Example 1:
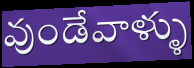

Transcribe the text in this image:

వుండేవాళ్ళు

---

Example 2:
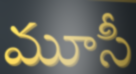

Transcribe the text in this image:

మూసీ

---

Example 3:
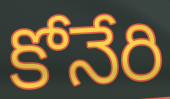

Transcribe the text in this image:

కోనేరి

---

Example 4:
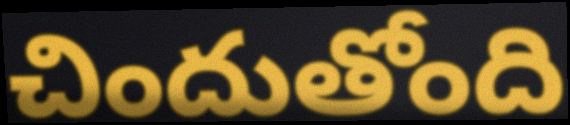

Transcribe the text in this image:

చిందుతోంది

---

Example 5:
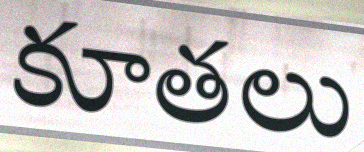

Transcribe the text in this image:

కూతలు